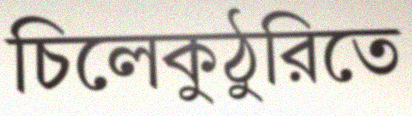
চিলেকুঠুরিতে